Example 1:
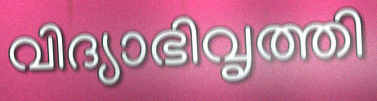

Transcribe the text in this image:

വിദ്യാഭിവൃത്തി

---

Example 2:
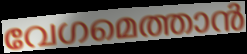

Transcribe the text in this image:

വേഗമെത്താൻ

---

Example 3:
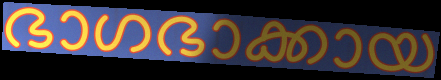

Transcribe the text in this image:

ഭാഗഭാക്കായ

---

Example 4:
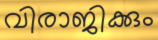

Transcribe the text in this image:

വിരാജിക്കും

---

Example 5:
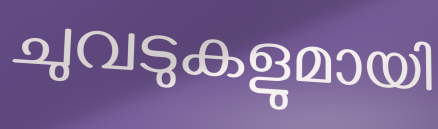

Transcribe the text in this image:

ചുവടുകളുമായി